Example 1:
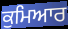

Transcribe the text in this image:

ਕੁਮਿਆਰ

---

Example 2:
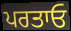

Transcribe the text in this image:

ਪਰਤਾਓ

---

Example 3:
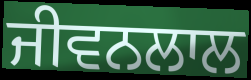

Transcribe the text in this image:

ਜੀਵਨਲਾਲ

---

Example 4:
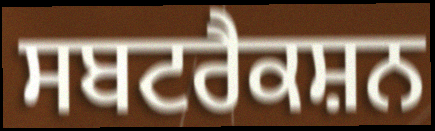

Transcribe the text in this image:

ਸਬਟਰੈਕਸ਼ਨ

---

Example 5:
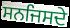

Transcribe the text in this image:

ਸਨਜਿਸਦੇ